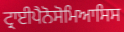
ਟ੍ਰਾਈਪੈਨੋਸੋਮਿਆਸਿਸ